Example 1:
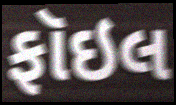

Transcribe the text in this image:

ફૉઇલ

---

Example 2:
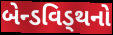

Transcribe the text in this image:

બેન્ડવિડ્થનો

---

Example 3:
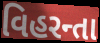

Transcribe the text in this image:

વિહરન્તા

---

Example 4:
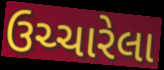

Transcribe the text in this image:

ઉચ્ચારેલા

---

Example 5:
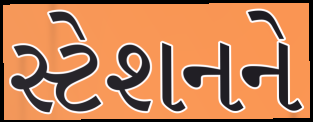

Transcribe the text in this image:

સ્ટેશનને